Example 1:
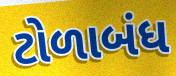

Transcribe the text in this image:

ટોળાબંધ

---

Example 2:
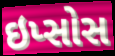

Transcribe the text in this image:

ઇપ્સોસ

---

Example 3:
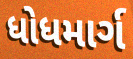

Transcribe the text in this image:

ધોધમાર્ગ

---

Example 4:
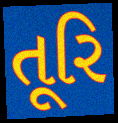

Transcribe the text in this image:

તૂરિ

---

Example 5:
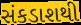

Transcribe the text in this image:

સંકડાશથી